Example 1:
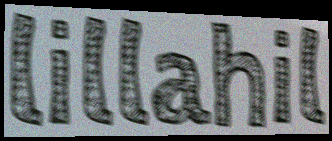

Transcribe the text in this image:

lillahil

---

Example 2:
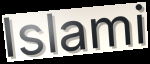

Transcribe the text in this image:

Islami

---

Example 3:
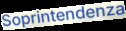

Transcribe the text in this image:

Soprintendenza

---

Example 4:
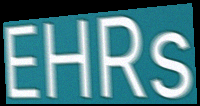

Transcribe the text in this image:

EHRs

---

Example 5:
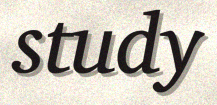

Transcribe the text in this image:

study